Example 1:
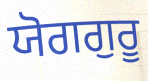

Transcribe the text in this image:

ਯੋਗਗੁਰੂ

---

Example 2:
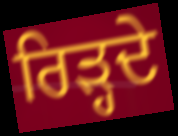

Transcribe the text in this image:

ਰਿੜ੍ਹਦੇ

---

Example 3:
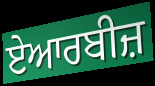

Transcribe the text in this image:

ਏਆਰਬੀਜ਼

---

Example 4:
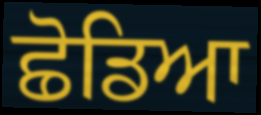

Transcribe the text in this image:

ਛੋਡਿਆ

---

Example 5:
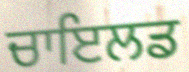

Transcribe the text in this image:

ਚਾਇਲਡ